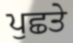
ਪੁਛਤੇ